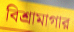
বিশ্রামাগার